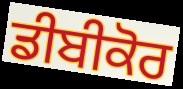
ਡੀਬੀਕੋਰ